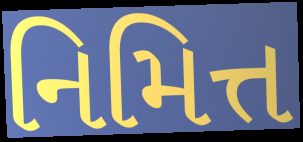
નિમિત્ત